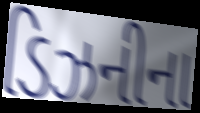
ડિઝનીના